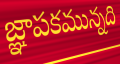
జ్ఞాపకమున్నది